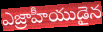
ఎజ్రాహీయుడైన